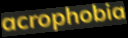
acrophobia